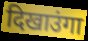
दिखाउंगा